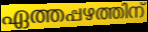
ഏത്തപ്പഴത്തിന്